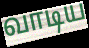
வாடிய